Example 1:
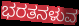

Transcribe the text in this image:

ಭರತನಳುವ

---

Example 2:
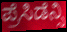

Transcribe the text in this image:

ಪ್ರೆಸಿಡೆನ್ಸಿ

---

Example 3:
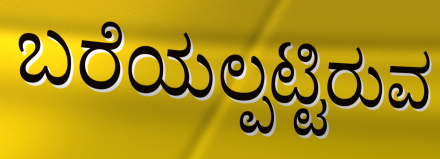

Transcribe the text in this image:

ಬರೆಯಲ್ಪಟ್ಟಿರುವ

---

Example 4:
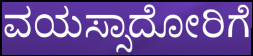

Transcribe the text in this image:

ವಯಸ್ಸಾದೋರಿಗೆ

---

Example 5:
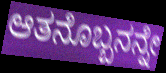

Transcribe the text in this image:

ಆತನೊಬ್ಬನನ್ನೇ